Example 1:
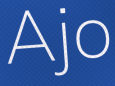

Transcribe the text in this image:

Ajo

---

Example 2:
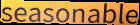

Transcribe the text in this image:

seasonable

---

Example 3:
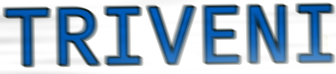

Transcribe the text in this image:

TRIVENI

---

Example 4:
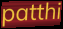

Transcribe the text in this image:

patthi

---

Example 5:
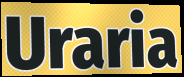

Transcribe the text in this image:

Uraria